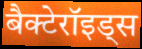
बैक्टेरॉइड्स